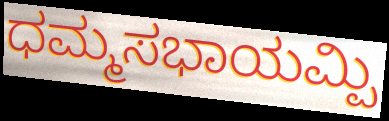
ಧಮ್ಮಸಭಾಯಮ್ಪಿ